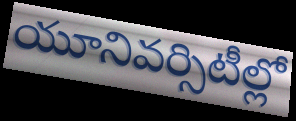
యూనివర్సిటీల్లో